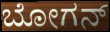
ಬೋಗನ್